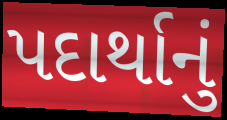
પદાર્થાનું